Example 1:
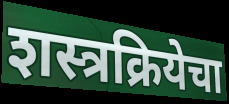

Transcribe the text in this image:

शस्त्रक्रियेचा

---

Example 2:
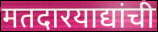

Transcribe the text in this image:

मतदारयाद्यांची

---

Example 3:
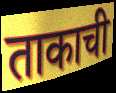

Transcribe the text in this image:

ताकाची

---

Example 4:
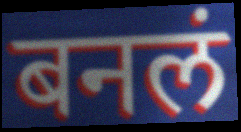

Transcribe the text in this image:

बनलं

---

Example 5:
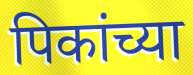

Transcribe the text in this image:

पिकांच्या